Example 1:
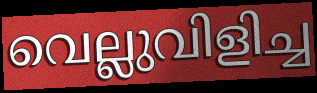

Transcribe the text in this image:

വെല്ലുവിളിച്ച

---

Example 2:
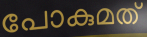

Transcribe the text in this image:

പോകുമത്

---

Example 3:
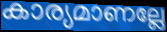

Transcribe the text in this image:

കാര്യമാണല്ലേ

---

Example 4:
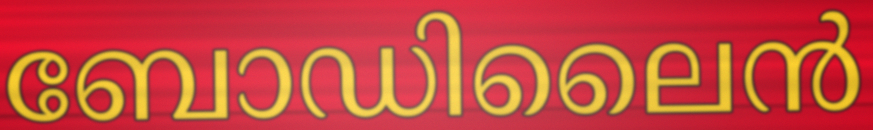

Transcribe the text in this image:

ബോഡിലൈൻ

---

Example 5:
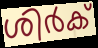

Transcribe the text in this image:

ശിർക്